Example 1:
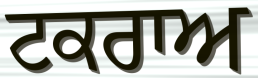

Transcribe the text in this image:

ਟਕਰਾਅ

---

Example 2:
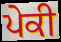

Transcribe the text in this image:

ਪੇਕੀ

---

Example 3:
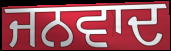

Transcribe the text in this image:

ਜਨਵਾਦ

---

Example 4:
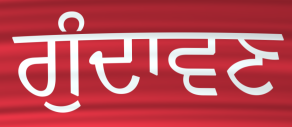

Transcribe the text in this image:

ਗੁੰਦਾਵਣ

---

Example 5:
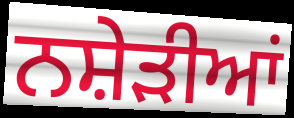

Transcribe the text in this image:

ਨਸ਼ੇੜੀਆਂ